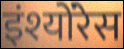
इंश्योंरेस